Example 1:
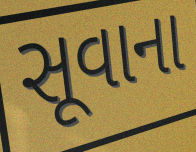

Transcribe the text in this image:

સૂવાના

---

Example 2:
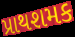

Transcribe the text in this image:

પ્રાથશમક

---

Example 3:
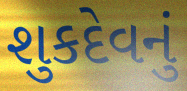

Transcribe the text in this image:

શુકદેવનું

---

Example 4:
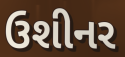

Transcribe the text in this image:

ઉશીનર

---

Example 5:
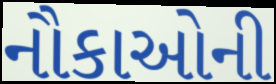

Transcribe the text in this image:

નૌકાઓની